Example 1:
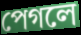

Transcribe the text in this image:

পেগলে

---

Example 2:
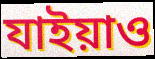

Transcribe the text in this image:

যাইয়াও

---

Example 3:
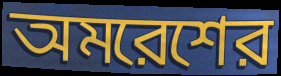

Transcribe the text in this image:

অমরেশের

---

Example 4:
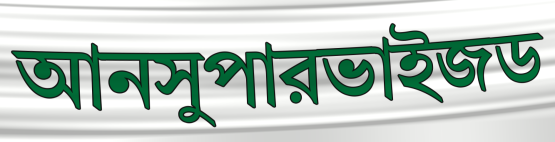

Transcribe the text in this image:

আনসুপারভাইজড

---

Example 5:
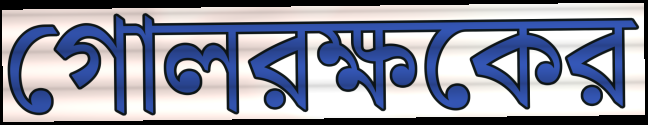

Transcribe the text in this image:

গোলরক্ষকের